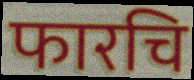
फारचि